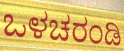
ಒಳಚರಂಡಿ